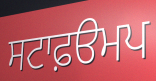
ਸਟਾਫ਼ੳਮਪ